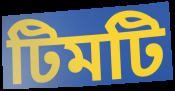
টিমটি